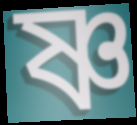
ষ্ণ